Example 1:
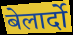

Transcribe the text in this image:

बेलार्दो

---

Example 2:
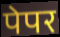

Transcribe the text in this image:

पेपर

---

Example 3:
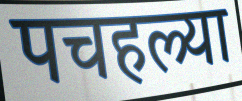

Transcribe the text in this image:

पचहल्या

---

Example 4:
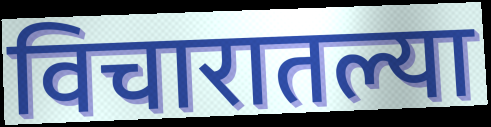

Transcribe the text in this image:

विचारातल्या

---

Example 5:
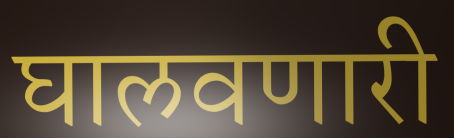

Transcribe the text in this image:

घालवणारी